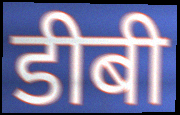
डीबी